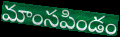
మాంసపిండం